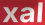
xal